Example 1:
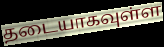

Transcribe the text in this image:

தடையாகவுள்ள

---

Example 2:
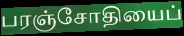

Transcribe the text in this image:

பரஞ்சோதியைப்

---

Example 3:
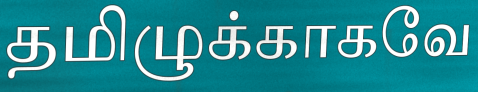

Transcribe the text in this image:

தமிழுக்காகவே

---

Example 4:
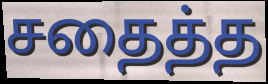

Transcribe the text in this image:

சதைத்த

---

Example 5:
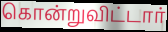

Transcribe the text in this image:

கொன்றுவிட்டார்